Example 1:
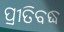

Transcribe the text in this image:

ପ୍ରୀତିବଦ୍ଧ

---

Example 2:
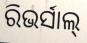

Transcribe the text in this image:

ରିଭର୍ସାଲ୍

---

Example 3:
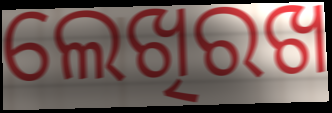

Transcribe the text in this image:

ଲେଖିରଖ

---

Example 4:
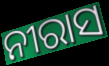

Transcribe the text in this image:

ନୀରାସ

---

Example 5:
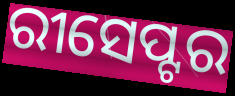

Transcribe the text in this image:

ରୀସେପ୍ଟର